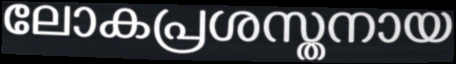
ലോകപ്രശസ്തനായ